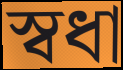
স্বধা